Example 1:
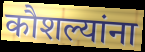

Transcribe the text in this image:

कौशल्यांना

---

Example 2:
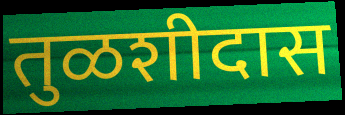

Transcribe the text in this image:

तुळशीदास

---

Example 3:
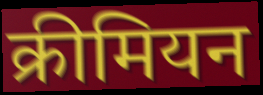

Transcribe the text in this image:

क्रीमियन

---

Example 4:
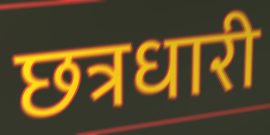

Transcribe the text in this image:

छत्रधारी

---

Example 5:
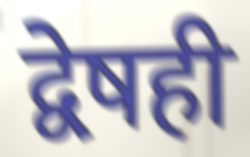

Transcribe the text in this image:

द्वेषही